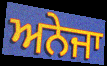
ਅਨੇਜਾ